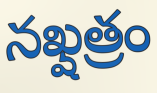
నఖ్షత్రం